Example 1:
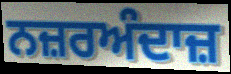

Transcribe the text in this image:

ਨਜ਼ਰਅੰਦਾਜ਼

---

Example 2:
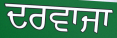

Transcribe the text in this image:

ਦਰਵਾਜਾ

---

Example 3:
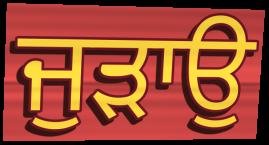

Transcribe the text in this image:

ਜੁੜਾਉ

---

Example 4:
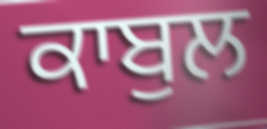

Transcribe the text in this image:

ਕਾਬੁਲ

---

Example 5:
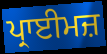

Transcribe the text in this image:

ਪ੍ਰਾਈਮਜ਼